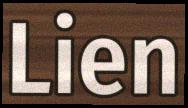
Lien